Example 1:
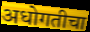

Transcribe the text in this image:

अधोगतीचा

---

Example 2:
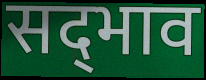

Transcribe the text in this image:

सद्‍भाव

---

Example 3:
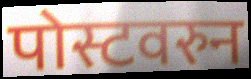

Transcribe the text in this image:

पोस्टवरुन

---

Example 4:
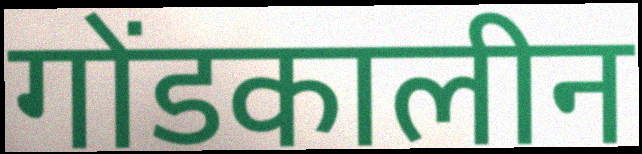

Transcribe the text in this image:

गोंडकालीन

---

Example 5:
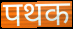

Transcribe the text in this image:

पथक